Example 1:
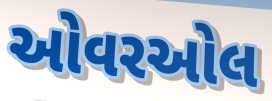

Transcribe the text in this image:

ઓવરઓલ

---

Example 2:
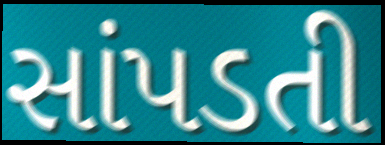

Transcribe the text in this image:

સાંપડતી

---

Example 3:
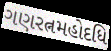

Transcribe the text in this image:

ગણરત્નમહોદધિ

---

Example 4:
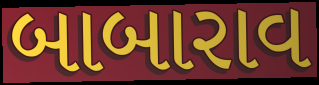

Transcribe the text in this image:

બાબારાવ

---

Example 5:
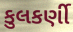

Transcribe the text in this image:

કુલકર્ણી